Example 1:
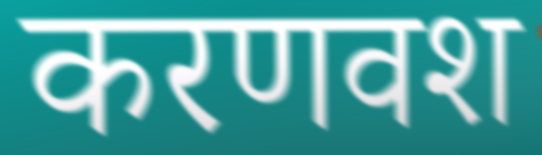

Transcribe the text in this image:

करणवश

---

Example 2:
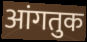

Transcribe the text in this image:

आंगतुक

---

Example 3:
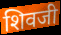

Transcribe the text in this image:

शिवजी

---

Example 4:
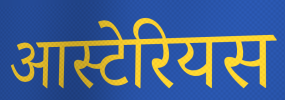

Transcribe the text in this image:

आस्टेरियस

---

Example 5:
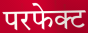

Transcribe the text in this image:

परफेक्ट